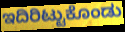
ಇದಿರಿಟ್ಟುಕೊಂಡು